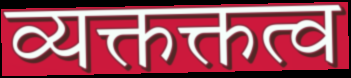
व्यक्तक्तत्व